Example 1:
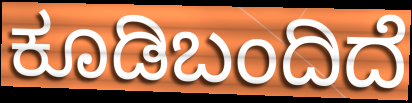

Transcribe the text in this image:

ಕೂಡಿಬಂದಿದೆ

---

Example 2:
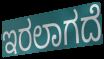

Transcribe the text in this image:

ಇರಲಾಗದೆ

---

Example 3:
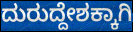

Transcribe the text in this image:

ದುರುದ್ದೇಶಕ್ಕಾಗಿ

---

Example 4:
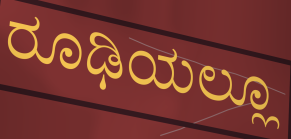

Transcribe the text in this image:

ರೂಢಿಯಲ್ಲೂ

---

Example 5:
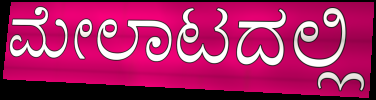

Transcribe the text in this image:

ಮೇಲಾಟದಲ್ಲಿ